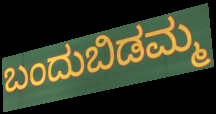
ಬಂದುಬಿಡಮ್ಮ